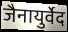
जैनायुर्वेद